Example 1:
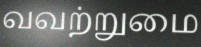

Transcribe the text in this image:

வவற்றுமை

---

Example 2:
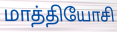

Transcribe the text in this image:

மாத்தியோசி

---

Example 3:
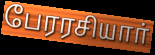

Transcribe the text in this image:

பேரரசியார்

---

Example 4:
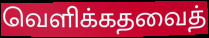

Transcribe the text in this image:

வெளிக்கதவைத்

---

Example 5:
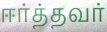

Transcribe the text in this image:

ஈர்த்தவர்